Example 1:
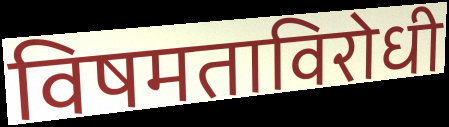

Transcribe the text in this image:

विषमताविरोधी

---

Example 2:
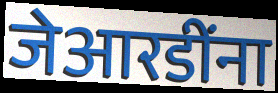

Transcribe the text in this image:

जेआरडींना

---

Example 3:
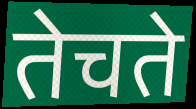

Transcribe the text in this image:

तेचते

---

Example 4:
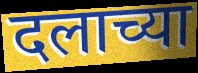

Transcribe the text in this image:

दलाच्या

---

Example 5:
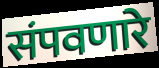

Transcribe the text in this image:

संपवणारे